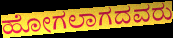
ಹೋಗಲಾಗದವರು